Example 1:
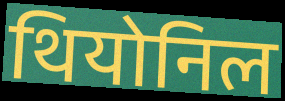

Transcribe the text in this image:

थियोनिल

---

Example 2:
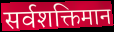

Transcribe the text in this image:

सर्वशक्तिमान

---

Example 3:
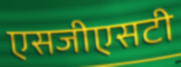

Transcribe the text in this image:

एसजीएसटी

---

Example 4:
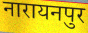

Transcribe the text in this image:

नारायनपुर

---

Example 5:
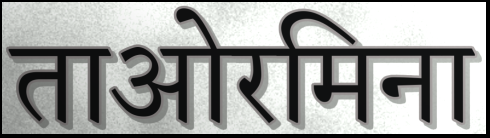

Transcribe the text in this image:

ताओरमिना